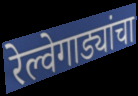
रेल्वेगाड्यांचा